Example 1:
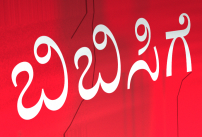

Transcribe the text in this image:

ಬಿಬಿಸಿಗೆ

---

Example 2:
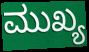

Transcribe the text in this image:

ಮುಖ್ಯ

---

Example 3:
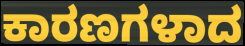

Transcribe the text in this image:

ಕಾರಣಗಳಾದ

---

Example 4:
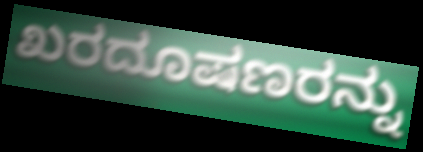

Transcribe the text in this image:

ಖರದೂಷಣರನ್ನು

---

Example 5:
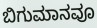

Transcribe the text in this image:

ಬಿಗುಮಾನವೂ